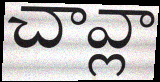
చావ్లా